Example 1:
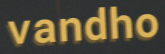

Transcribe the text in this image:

vandho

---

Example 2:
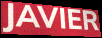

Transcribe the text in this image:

JAVIER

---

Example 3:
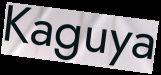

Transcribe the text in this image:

Kaguya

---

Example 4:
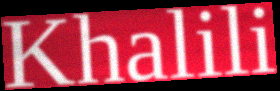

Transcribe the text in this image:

Khalili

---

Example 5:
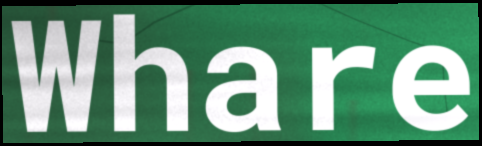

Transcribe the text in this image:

Whare